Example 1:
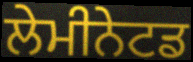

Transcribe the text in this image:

ਲੇਮੀਨੇਟਡ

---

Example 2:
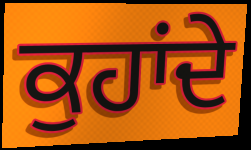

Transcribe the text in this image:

ਕੁਹਾਂਦੇ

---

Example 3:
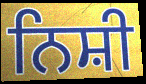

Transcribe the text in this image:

ਨਿਸ਼ੀ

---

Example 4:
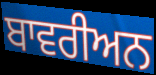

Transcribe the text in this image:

ਬਾਵਰੀਅਨ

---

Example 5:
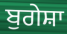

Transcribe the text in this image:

ਬੁਗੇਸ਼ਾ